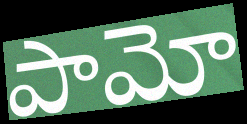
పామో